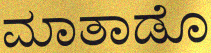
ಮಾತಾಡೊ